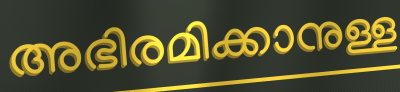
അഭിരമിക്കാനുള്ള